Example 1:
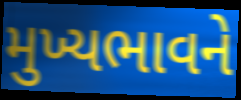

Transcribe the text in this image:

મુખ્યભાવને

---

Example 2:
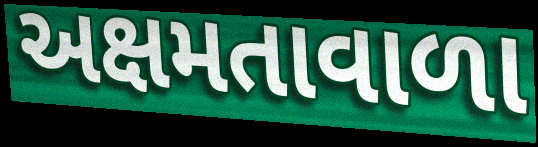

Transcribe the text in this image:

અક્ષમતાવાળા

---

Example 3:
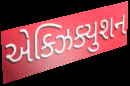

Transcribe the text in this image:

એક્ઝિક્યુશન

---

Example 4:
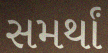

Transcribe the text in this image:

સમર્થાં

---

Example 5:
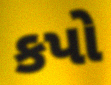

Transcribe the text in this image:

કપો